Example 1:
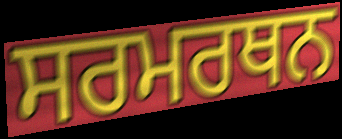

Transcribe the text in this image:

ਸਰਮਰਥਨ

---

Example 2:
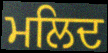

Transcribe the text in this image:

ਮਲਿਦ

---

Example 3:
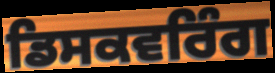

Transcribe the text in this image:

ਡਿਸਕਵਰਿੰਗ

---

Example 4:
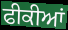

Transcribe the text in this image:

ਫੀਕੀਆਂ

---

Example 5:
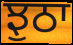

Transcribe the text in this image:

ਝੁਠਾ